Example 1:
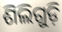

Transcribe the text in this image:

ଶିଲିଗୁଡ଼ି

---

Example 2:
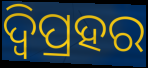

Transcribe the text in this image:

ଦ୍ବିପ୍ରହର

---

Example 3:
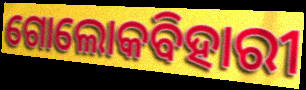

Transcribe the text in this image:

ଗୋଲୋକବିହାରୀ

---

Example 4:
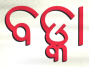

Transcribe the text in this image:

ବଡ୍କା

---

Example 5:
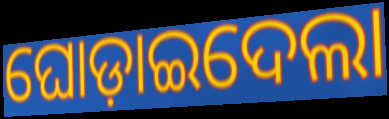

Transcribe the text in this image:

ଘୋଡ଼ାଇଦେଲା